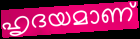
ഹൃദയമാണ്